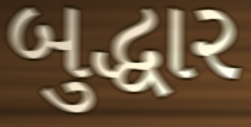
બુદ્ધાર